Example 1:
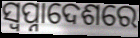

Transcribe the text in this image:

ସ୍ଵପ୍ନାଦେଶରେ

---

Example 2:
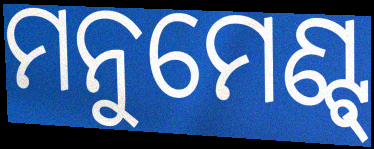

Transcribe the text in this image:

ମନୁମେଣ୍ଟ୍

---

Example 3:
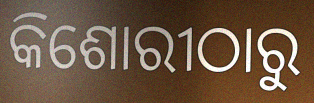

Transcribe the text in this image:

କିଶୋରୀଠାରୁ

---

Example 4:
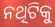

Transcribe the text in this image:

ନଥିଟିକୁ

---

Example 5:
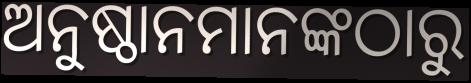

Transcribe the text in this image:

ଅନୁଷ୍ଠାନମାନଙ୍କଠାରୁ